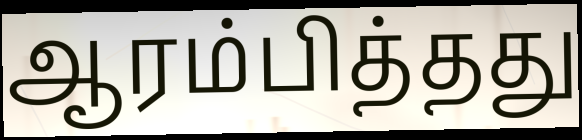
ஆரம்பித்தது